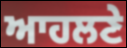
ਆਹਲਣੇ